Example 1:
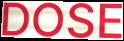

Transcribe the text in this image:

DOSE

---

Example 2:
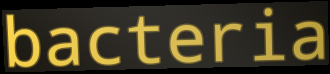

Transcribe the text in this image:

bacteria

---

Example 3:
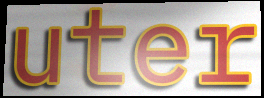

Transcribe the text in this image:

uter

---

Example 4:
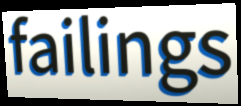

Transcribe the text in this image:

failings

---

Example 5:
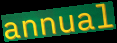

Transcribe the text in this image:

annual